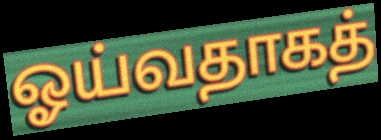
ஓய்வதாகத்